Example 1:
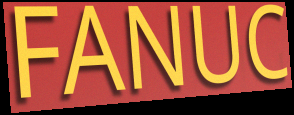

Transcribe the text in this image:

FANUC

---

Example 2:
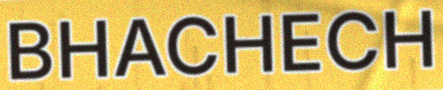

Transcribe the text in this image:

BHACHECH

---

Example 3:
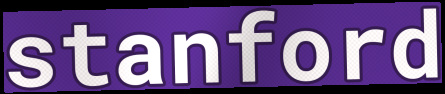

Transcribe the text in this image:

stanford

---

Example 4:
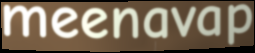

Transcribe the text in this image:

meenavap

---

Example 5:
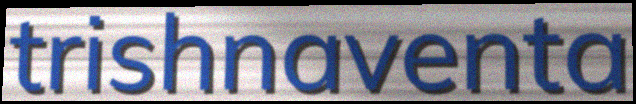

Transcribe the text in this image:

trishnaventa